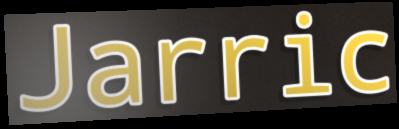
Jarric